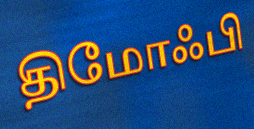
திமோஃபி